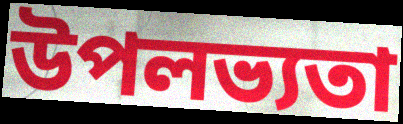
উপলভ্যতা